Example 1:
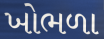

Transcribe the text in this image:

ખોભળા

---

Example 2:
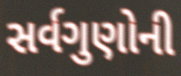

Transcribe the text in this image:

સર્વગુણોની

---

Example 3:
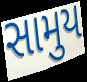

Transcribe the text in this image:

સામુય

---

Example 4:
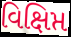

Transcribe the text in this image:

વિક્ષિપ્ત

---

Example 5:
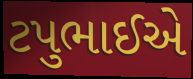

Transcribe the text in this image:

ટપુભાઈએ